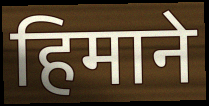
हिमाने